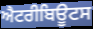
ਐਟਰੀਬਿਊਟਸ